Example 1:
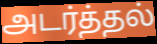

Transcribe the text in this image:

அடர்த்தல்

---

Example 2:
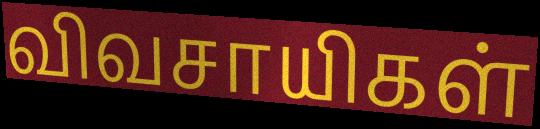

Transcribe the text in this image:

விவசாயிகள்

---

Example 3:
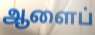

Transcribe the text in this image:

ஆளைப்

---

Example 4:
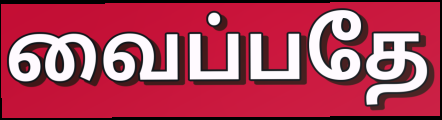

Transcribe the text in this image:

வைப்பதே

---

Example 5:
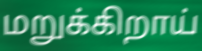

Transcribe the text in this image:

மறுக்கிறாய்